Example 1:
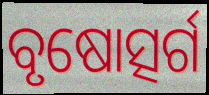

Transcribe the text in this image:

ବୃଷୋତ୍ସର୍ଗ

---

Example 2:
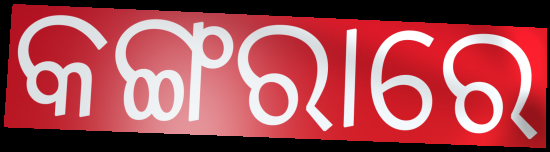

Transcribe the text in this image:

କଙ୍ଗରାରେ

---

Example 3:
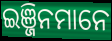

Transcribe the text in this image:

ଇଞ୍ଜିନମାନେ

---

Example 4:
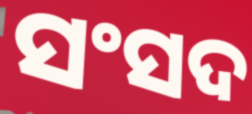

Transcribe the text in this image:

ସଂସଦ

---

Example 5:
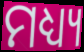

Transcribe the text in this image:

ମଧ୍ୟ୍ୟ